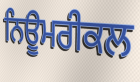
ਨਿਊਮਰੀਕਲ